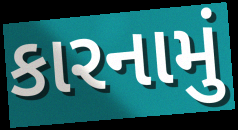
કારનામું